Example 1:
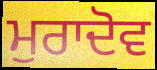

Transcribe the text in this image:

ਮੁਰਾਦੋਵ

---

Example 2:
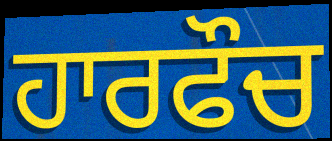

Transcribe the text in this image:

ਹਾਰਫੌਚ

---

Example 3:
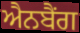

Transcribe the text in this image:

ਐਨਬੈਂਗ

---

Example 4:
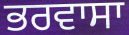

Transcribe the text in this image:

ਭਰਵਾਸਾ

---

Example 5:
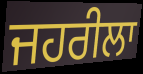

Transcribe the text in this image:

ਜਹਰੀਲਾ